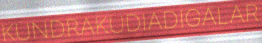
KUNDRAKUDIADIGALAR